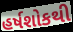
હર્ષશોકથી